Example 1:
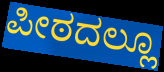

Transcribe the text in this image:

ಪೀಠದಲ್ಲೂ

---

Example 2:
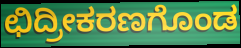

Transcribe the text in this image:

ಛಿದ್ರೀಕರಣಗೊಂಡ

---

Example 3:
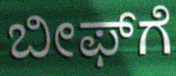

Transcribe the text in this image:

ಬೀಫ್‌ಗೆ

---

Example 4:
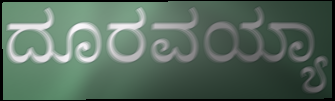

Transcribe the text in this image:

ದೂರವಯ್ಯಾ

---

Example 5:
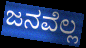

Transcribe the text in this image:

ಜನವೆಲ್ಲ